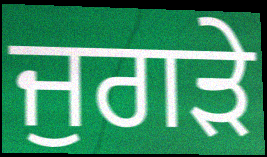
ਜੁਗੜੇ